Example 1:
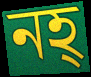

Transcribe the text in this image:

নহ্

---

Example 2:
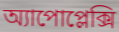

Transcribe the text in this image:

অ্যাপোপ্লেক্সি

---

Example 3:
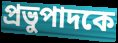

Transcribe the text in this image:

প্রভুপাদকে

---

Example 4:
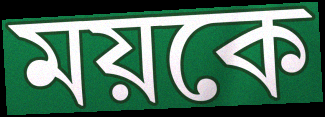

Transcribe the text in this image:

ময়কে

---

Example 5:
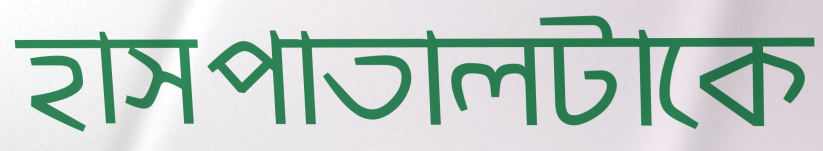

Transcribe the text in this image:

হাসপাতালটাকে